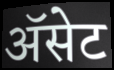
ॲसेट